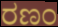
ರಣಂ